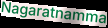
Nagaratnamma